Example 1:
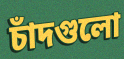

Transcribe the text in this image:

চাঁদগুলো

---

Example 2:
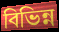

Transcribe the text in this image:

বিভিন্ন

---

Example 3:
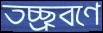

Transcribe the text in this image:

তচ্ছ্রবণে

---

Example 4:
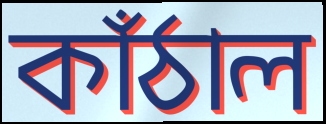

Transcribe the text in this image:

কাঁঠাল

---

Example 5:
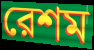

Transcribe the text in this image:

রেশম